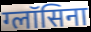
ग्लॉसिना